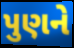
પુણને